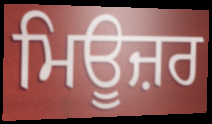
ਮਿਊਜ਼ਰ